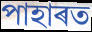
পাহাৰত